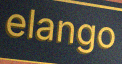
elango